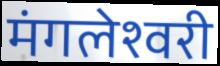
मंगलेश्वरी